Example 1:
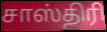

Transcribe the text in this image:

சாஸ்திரி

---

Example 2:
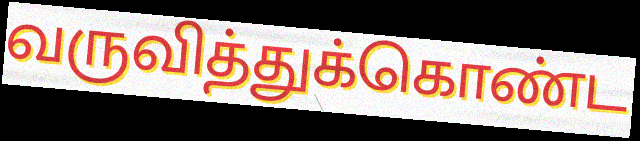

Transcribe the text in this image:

வருவித்துக்கொண்ட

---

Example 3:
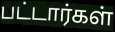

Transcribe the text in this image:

பட்டார்கள்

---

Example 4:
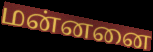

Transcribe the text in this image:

மன்னனை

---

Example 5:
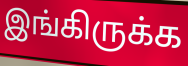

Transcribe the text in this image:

இங்கிருக்க